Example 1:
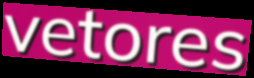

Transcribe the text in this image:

vetores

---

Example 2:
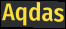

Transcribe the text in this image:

Aqdas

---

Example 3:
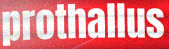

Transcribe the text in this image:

prothallus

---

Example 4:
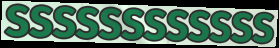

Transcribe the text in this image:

ssssssssssss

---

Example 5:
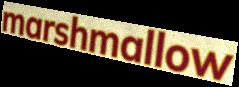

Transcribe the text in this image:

marshmallow